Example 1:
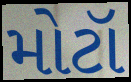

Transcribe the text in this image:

મોટૉ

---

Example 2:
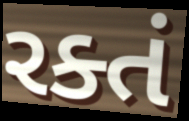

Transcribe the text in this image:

રક્તં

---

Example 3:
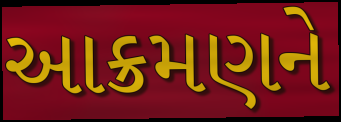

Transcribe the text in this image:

આક્રમણને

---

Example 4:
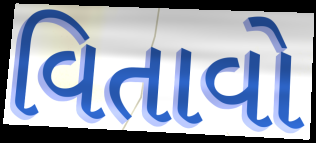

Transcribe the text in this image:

વિતાવો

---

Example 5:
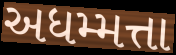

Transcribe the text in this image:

અધમ્મત્તા